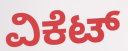
ವಿಕೆಟ್